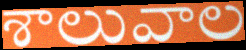
శాలువాల